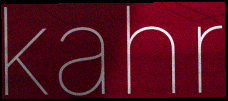
kahr